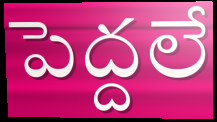
పెద్దలే